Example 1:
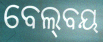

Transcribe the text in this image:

ବେଲ୍‍ବୟ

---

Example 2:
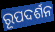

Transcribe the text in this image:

ରୂପଦର୍ଶନ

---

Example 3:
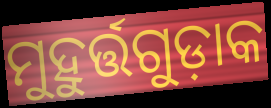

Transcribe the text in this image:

ମୁହୁର୍ତ୍ତଗୁଡ଼ାକ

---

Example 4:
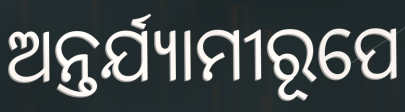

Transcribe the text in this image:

ଅନ୍ତର୍ଯ୍ୟାମୀରୂପେ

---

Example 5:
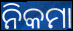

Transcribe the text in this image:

ନିକମା